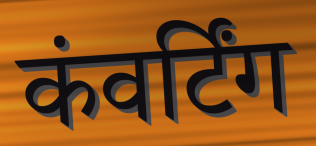
कंवर्टिंग